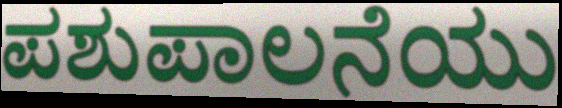
ಪಶುಪಾಲನೆಯು